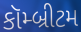
કૉમ્બ્રીટમ